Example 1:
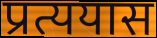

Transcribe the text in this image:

प्रत्ययास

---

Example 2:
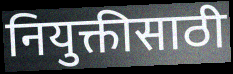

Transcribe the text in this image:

नियुक्तीसाठी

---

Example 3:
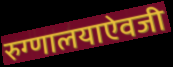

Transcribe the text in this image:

रुग्णालयाऐवजी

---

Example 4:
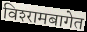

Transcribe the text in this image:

विश्रामबागेत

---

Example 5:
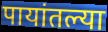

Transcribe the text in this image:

पायांतल्या